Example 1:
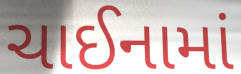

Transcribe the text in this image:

ચાઈનામાં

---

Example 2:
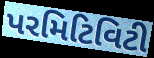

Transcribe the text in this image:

પરમિટિવિટી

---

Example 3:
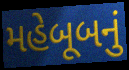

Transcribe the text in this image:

મહેબૂબનું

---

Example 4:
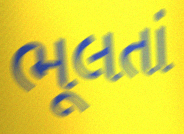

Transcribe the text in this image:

ભૂલતાં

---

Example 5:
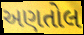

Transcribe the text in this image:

અણતોલ